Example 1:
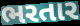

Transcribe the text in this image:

ભરતાર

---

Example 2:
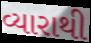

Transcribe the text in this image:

વ્યારાથી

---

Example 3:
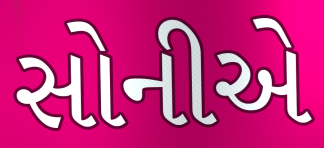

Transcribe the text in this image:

સોનીએ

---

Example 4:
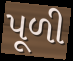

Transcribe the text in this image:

પૂળી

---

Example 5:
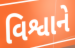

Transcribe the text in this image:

વિશ્વાને